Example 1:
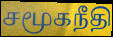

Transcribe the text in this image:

சமூகநீதி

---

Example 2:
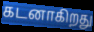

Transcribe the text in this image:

கடனாகிறது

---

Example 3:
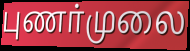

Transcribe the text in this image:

புணர்முலை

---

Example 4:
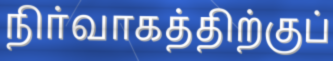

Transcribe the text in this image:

நிர்வாகத்திற்குப்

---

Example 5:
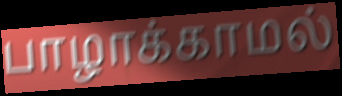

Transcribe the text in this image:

பாழாக்காமல்